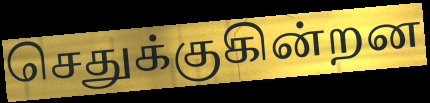
செதுக்குகின்றன